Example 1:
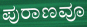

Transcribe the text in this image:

ಪುರಾಣವೂ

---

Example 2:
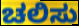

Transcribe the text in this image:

ಚಲಿಸು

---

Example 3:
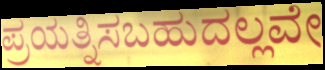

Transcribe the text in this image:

ಪ್ರಯತ್ನಿಸಬಹುದಲ್ಲವೇ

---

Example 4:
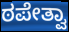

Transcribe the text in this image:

ಠಪೇತ್ವಾ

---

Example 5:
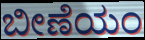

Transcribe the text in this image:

ಬೀಣೆಯಂ